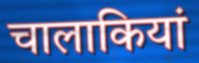
चालाकियां